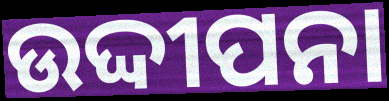
ଉଦ୍ଦୀପନା